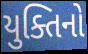
યુક્તિનો